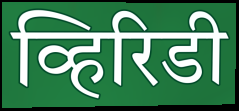
व्हिरिडी